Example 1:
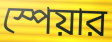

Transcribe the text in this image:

স্পেয়ার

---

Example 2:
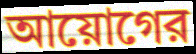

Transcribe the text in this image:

আয়োগের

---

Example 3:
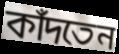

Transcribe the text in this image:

কাঁদতেন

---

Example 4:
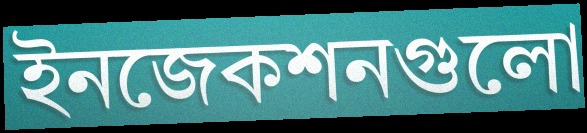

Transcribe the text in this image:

ইনজেকশনগুলো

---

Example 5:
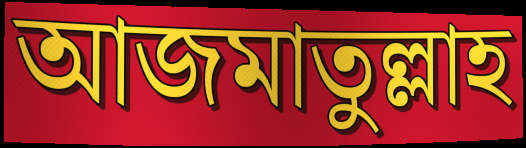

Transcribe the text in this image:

আজমাতুল্লাহ